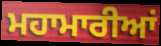
ਮਹਾਮਾਰੀਆਂ